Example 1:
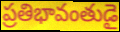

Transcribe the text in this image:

ప్రతిభావంతుడై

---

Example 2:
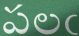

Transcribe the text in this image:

పలఁ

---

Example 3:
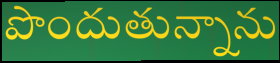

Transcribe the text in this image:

పొందుతున్నాను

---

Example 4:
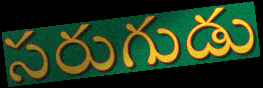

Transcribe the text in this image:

సరుగుడు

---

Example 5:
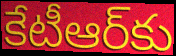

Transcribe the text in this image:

కేటీఆర్‌కు